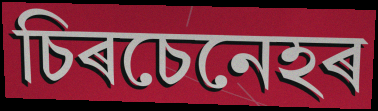
চিৰচেনেহৰ